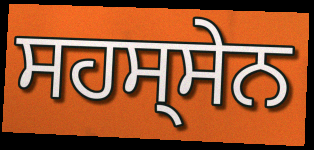
ਸਹਸ੍ਸੇਨ